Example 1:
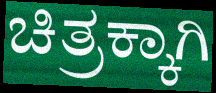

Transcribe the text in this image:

ಚಿತ್ರಕ್ಕಾಗಿ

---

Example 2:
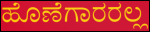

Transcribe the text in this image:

ಹೊಣೆಗಾರರಲ್ಲ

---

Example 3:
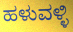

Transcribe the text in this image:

ಹಳುವಳ್ಳಿ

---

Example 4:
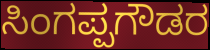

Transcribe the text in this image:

ಸಿಂಗಪ್ಪಗೌಡರ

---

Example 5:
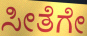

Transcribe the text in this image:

ಸೀತೆಗೇ